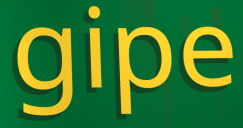
gipe